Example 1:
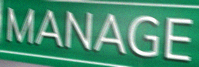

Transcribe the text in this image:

MANAGE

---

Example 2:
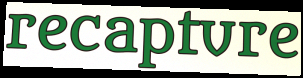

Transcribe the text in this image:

recapture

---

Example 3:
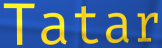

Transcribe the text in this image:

Tatar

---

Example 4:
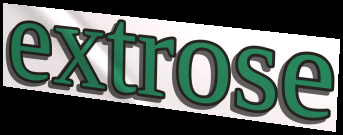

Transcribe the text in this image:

extrose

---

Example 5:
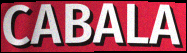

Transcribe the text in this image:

CABALA